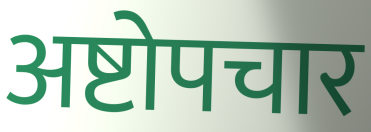
अष्टोपचार